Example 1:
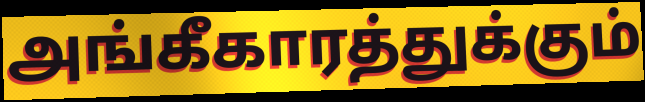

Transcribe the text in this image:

அங்கீகாரத்துக்கும்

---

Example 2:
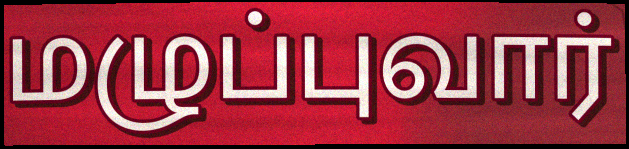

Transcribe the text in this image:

மழுப்புவார்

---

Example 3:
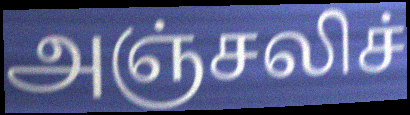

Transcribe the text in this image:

அஞ்சலிச்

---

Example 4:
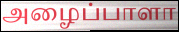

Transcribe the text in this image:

அழைப்பாளா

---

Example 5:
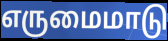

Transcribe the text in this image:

எருமைமாடு